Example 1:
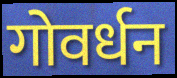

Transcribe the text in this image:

गोवर्धन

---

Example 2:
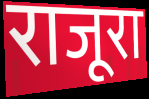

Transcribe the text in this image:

राजूरा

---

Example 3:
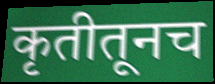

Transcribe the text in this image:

कृतीतूनच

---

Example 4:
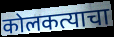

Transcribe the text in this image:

कोलकत्याचा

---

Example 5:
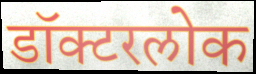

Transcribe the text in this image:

डॉक्टरलोक